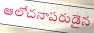
ఆలోచనాపరుడైన